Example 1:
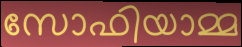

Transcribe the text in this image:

സോഫിയാമ്മ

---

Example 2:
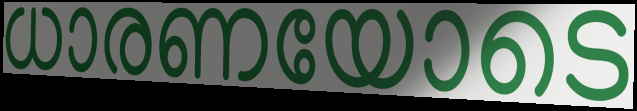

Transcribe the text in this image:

ധാരണയോടെ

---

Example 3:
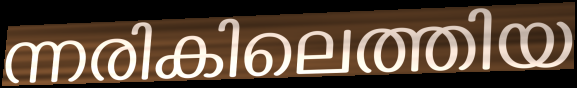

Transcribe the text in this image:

ന്നരികിലെത്തിയ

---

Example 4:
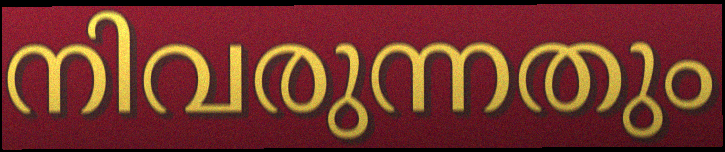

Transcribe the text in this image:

നിവരുന്നതും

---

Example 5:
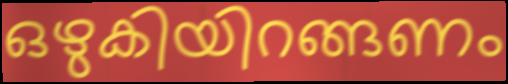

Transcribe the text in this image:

ഒഴുകിയിറങ്ങണം